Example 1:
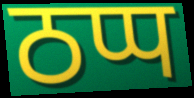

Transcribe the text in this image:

ठप्प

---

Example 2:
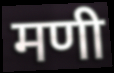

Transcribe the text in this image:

मणी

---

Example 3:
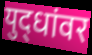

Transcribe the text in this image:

युद्धांवर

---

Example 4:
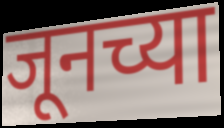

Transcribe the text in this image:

जूनच्या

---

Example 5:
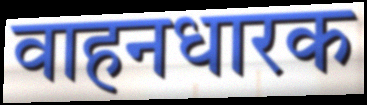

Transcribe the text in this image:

वाहनधारक